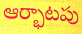
ఆర్భాటపు